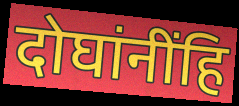
दोघांनींहि